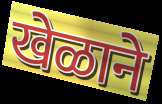
खेळाने